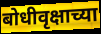
बोधीवृक्षाच्या